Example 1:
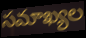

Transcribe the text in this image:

సమాఖ్యల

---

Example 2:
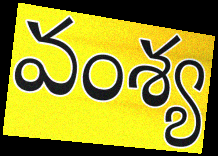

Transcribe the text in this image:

వంశ్య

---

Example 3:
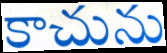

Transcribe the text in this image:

కాచును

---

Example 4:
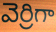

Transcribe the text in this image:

వెర్రిగా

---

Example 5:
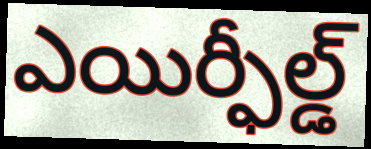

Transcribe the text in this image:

ఎయిర్ఫీల్డ్